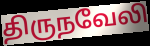
திருநவேலி